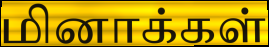
மினாக்கள்